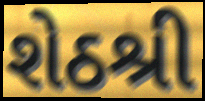
શેઠશ્રી